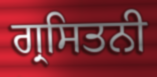
ਗ੍ਰਸਿਤਨੀ